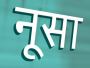
नूसा